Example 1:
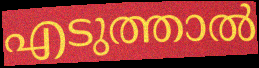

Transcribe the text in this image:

എടുത്താൽ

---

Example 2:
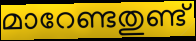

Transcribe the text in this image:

മാറേണ്ടതുണ്ട്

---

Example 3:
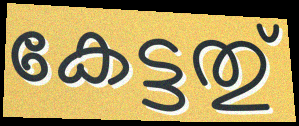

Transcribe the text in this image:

കേട്ടതു്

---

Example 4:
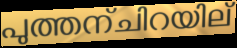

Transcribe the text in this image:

പുത്തന്ചിറയില്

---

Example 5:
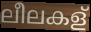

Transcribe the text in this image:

ലീലകള്